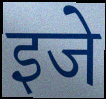
इजे